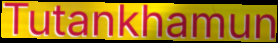
Tutankhamun